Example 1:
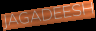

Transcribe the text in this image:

JAGADEESH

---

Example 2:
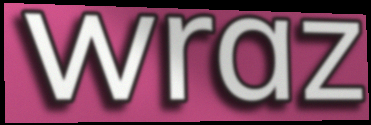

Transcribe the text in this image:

wraz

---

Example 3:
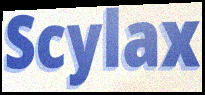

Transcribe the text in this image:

Scylax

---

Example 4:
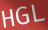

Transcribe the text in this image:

HGL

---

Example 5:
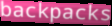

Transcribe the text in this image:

backpacks